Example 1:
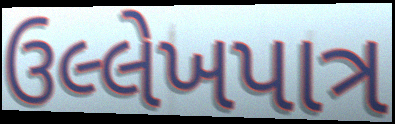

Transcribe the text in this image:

ઉલ્લેખપાત્ર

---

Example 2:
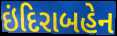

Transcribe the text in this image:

ઇંદિરાબહેન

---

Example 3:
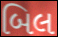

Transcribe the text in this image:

બિલ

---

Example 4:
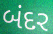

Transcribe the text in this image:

બંદર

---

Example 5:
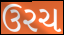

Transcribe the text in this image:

ઉરચ